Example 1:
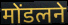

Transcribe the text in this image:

मोंडलने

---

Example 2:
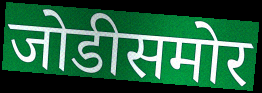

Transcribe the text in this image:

जोडीसमोर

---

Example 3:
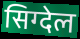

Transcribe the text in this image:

सिग्देल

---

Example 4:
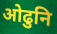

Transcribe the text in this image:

ओढुनि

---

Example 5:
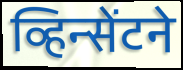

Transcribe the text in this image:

व्हिन्सेंटने